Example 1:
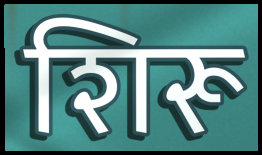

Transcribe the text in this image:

शिरू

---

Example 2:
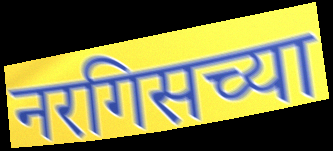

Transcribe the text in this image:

नरगिसच्या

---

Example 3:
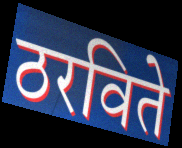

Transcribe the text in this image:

ठरविते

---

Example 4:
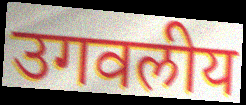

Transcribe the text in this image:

उगवलीय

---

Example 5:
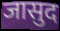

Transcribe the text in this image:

जासुद